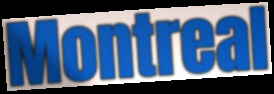
Montreal